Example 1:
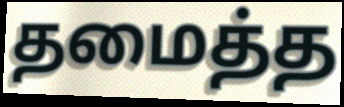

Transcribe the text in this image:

தமைத்த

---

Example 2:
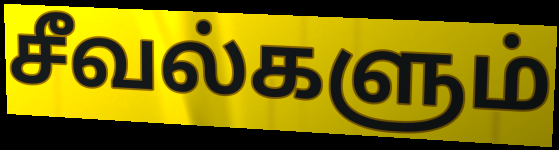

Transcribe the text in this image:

சீவல்களும்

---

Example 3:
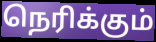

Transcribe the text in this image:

நெரிக்கும்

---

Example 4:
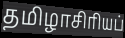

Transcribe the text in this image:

தமிழாசிரியப்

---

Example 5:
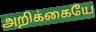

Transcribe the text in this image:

அறிக்கையே